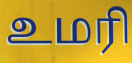
உமரி